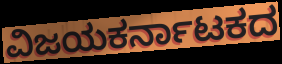
ವಿಜಯಕರ್ನಾಟಕದ